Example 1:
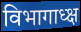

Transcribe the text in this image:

विभागाध्क्ष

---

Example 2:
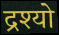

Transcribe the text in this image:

द्रश्यो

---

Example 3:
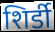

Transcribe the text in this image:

शिर्डी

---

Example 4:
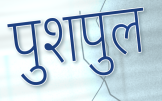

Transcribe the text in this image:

पुशपुल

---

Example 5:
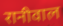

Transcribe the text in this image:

रानीवाल